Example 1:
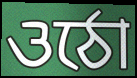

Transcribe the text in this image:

ওঠো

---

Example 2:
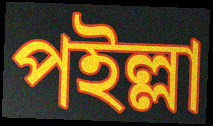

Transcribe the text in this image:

পইল্লা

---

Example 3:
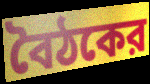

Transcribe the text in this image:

বৈঠকের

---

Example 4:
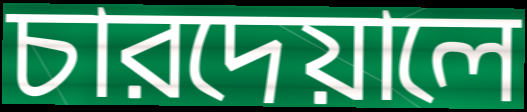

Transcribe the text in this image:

চারদেয়ালে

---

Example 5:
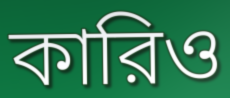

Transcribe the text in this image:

কারিও